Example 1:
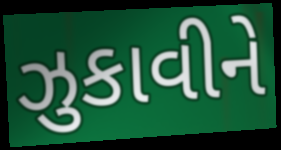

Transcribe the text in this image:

ઝુકાવીને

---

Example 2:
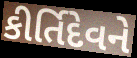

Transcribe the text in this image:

કીર્તિદેવને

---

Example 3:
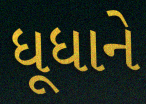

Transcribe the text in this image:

ધૂધાને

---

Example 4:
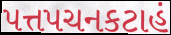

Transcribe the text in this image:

પત્તપચનકટાહં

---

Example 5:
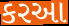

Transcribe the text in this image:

કરઆ